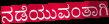
ನಡೆಯುವಂತಾಗಿ